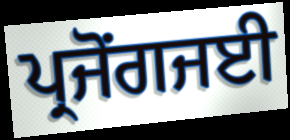
ਪ੍ਰਜੋਂਗਜਈ